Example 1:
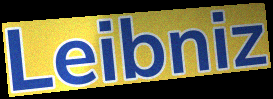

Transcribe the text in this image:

Leibniz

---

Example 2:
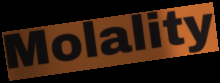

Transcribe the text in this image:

Molality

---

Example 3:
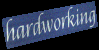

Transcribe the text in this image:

hardworking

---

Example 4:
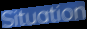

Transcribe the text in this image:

Situation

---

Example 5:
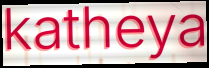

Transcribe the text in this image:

katheya